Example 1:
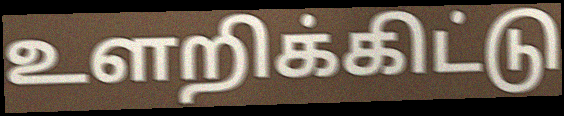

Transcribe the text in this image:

உளறிக்கிட்டு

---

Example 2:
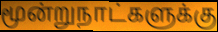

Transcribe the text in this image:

மூன்றுநாட்களுக்கு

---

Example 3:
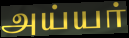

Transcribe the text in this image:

அய்யர்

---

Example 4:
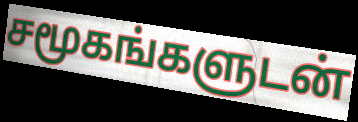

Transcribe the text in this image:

சமூகங்களுடன்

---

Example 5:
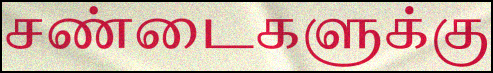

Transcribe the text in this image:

சண்டைகளுக்கு